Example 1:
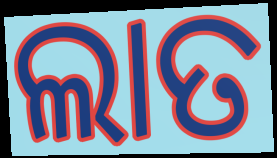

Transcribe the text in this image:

ଲାତ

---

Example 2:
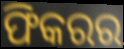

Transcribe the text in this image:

ଫିକରର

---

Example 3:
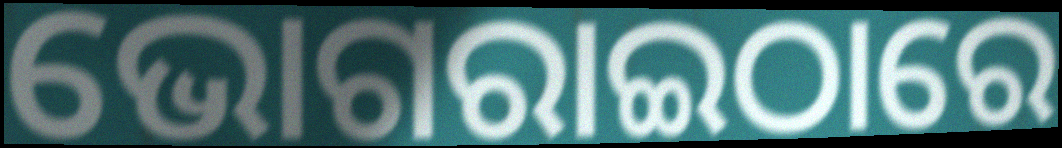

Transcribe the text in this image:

ଭୋଗରାଇଠାରେ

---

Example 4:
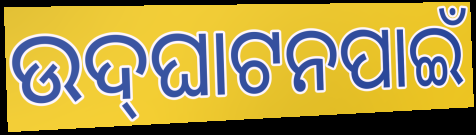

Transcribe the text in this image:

ଉଦ୍‌ଘାଟନପାଇଁ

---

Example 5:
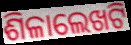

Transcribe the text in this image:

ଶିଳାଲେଖଟି